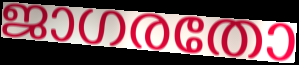
ജാഗരതോ